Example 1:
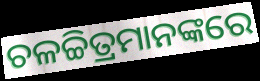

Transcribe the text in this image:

ଚଳଚ୍ଚିତ୍ରମାନଙ୍କରେ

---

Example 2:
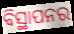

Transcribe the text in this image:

ବିସ୍ଥାପନର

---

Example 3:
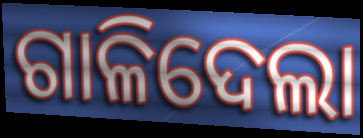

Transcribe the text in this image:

ଗାଳିଦେଲା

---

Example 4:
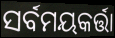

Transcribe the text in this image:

ସର୍ବମୟକର୍ତ୍ତା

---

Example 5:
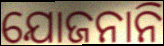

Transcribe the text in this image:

ଯୋଜନାନି